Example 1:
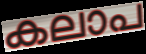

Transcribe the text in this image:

കലാപ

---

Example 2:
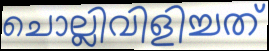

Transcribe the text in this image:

ചൊല്ലിവിളിച്ചത്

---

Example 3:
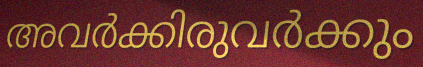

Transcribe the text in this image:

അവർക്കിരുവർക്കും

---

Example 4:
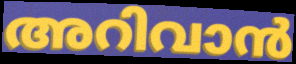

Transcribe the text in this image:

അറിവാൻ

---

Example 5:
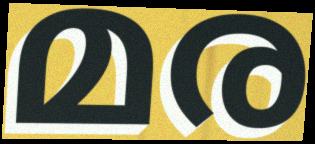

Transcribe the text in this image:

മര